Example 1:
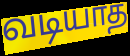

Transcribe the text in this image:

வடியாத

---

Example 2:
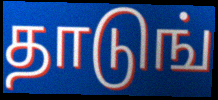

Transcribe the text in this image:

தாடுங்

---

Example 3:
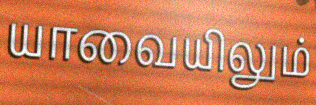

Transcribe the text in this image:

யாவையிலும்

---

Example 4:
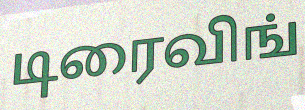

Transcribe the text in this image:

டிரைவிங்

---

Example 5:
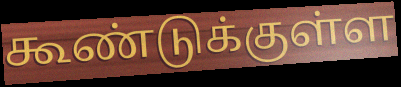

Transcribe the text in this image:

கூண்டுக்குள்ள